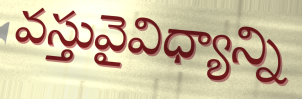
వస్తువైవిధ్యాన్ని